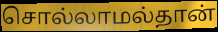
சொல்லாமல்தான்